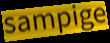
sampige